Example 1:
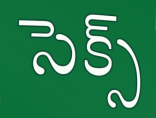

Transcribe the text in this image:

సెక్స్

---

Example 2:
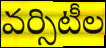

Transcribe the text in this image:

వర్సిటీల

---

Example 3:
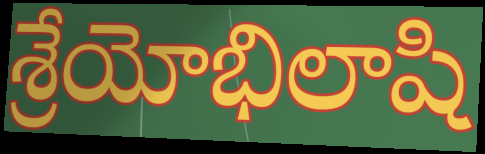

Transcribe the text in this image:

శ్రేయోభిలాషి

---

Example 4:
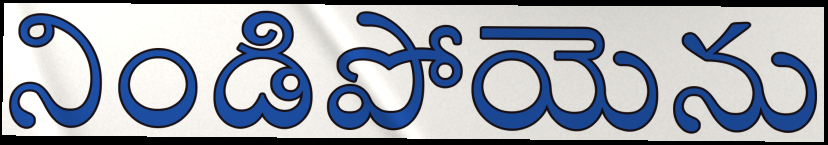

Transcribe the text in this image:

నిండిపోయెను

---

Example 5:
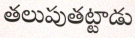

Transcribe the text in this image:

తలుపుతట్టాడు